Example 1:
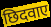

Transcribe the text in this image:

छिदवाए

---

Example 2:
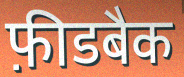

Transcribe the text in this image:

फ़ीडबैक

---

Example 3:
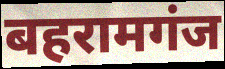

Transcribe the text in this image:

बहरामगंज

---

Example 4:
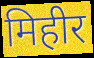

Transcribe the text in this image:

मिहीर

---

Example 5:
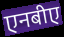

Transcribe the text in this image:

एनबीए